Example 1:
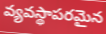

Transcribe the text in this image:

వ్యవస్థాపరమైన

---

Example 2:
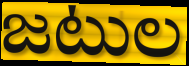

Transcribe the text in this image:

జటుల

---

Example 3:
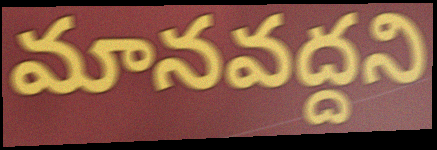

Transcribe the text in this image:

మానవద్దని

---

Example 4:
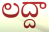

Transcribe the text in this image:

లద్దా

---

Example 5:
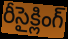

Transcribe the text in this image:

రీసైక్లింగ్